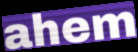
ahem